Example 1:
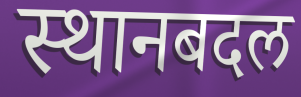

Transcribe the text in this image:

स्थानबदल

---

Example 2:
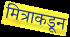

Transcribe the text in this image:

मित्राकडून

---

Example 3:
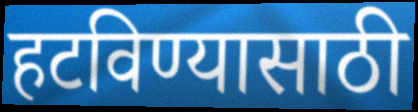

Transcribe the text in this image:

हटविण्यासाठी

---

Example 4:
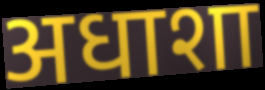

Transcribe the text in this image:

अधाशा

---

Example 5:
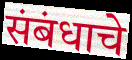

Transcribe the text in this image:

संबंधाचे